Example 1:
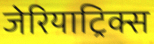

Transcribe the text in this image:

जेरियाट्रिक्स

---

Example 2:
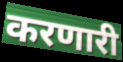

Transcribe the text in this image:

करणारी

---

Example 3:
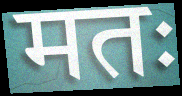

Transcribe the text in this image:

मतः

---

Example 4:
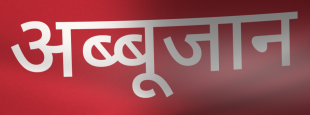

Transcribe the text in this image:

अब्बूजान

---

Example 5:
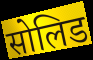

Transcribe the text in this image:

सोलिड